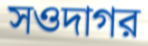
সওদাগর